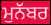
ਮੁਨੱਬਰ